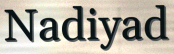
Nadiyad